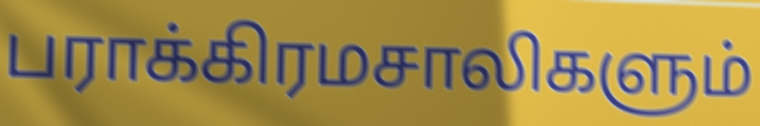
பராக்கிரமசாலிகளும்